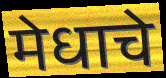
मेधाचे